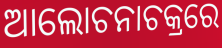
ଆଲୋଚନାଚକ୍ରରେ